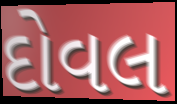
દોવલ